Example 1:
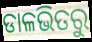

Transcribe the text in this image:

ଡାଳଭିତରୁ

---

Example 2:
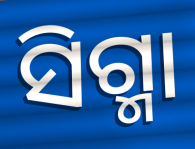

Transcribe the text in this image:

ସିଗ୍ମା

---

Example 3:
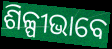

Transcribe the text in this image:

ଶିଳ୍ପୀଭାବେ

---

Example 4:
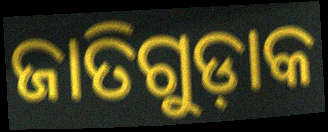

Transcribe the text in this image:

ଜାତିଗୁଡ଼ାକ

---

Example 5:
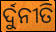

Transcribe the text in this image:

ର୍ଦୁନୀତି